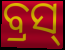
ବ୍ରସ୍